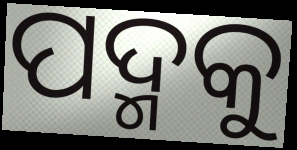
ପଦ୍ମକୁ